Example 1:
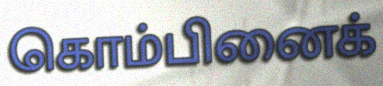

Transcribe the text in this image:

கொம்பினைக்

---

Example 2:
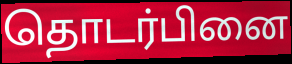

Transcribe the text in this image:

தொடர்பினை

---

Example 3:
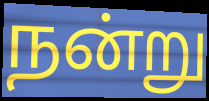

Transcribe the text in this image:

நன்று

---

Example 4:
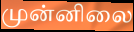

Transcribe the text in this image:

முன்னிலை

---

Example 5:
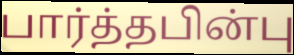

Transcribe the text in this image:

பார்த்தபின்பு